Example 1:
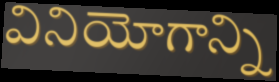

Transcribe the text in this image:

వినియోగాన్ని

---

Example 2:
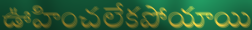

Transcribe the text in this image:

ఊహించలేకపోయాయి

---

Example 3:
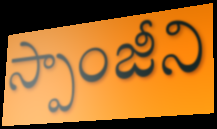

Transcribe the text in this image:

స్పాంజీని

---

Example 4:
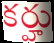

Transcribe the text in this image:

కర్హు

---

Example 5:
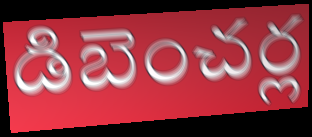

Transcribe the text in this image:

డిబెంచర్ల